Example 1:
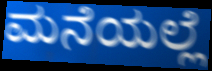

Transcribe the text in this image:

ಮನೆಯಲ್ಲೆ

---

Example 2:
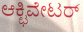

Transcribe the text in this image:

ಆಕ್ಟಿವೇಟರ್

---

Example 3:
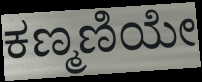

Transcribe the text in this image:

ಕಣ್ಮಣಿಯೇ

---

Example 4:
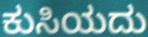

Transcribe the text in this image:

ಕುಸಿಯದು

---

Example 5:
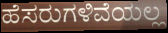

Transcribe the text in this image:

ಹೆಸರುಗಳಿವೆಯಲ್ಲ